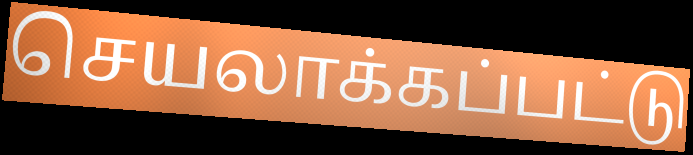
செயலாக்கப்பட்டு